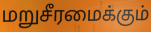
மறுசீரமைக்கும்